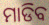
ମାଡିବ